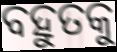
ବହୁତକୁ